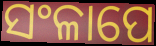
ସଂଳାପେ